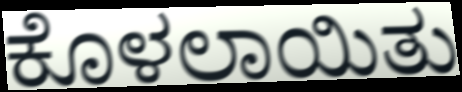
ಕೊಳಲಾಯಿತು